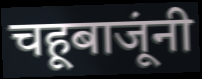
चहूबाजूंनी